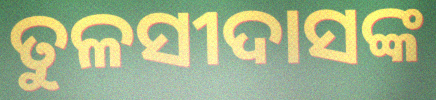
ତୁଳସୀଦାସଙ୍କ